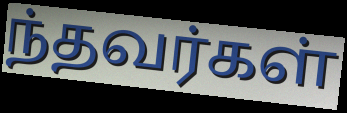
ந்தவர்கள்